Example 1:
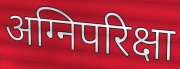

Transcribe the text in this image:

अग्निपरिक्षा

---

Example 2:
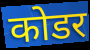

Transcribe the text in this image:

कोडर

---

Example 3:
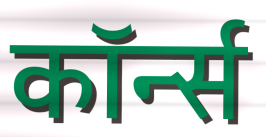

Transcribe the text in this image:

कॉर्न्स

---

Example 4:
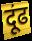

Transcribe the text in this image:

दूंढ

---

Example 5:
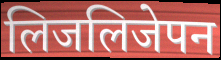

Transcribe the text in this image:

लिजलिजेपन